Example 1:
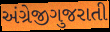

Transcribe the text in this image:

અંગ્રેજીગુજરાતી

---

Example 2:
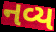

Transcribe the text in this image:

નવ્ય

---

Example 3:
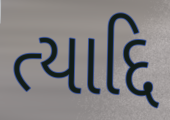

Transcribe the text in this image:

ત્યાદ્દિ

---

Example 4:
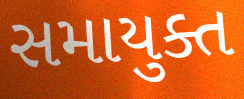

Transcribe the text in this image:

સમાયુક્ત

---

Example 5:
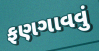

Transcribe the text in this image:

ફણગાવવું